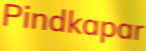
Pindkapar